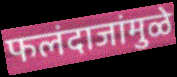
फलंदाजांमुळे